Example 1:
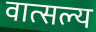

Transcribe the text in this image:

वात्सल्य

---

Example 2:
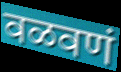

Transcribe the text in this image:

वळवणं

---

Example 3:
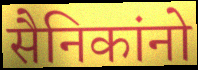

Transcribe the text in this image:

सैनिकांनो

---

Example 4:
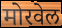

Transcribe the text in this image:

मोरवेल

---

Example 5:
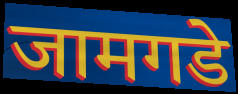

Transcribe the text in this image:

जामगडे